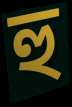
হু